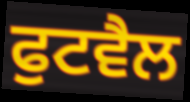
ਫੁਟਵੈਲ